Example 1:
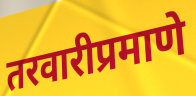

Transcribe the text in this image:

तरवारीप्रमाणे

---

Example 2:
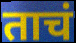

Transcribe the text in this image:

ताचं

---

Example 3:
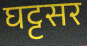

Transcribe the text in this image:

घट्टसर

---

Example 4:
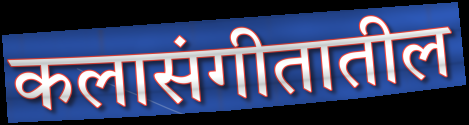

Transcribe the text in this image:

कलासंगीतातील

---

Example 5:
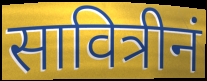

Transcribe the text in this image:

सावित्रीनं